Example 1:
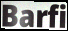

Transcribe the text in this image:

Barfi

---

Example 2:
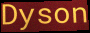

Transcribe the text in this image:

Dyson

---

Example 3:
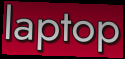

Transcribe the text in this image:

laptop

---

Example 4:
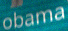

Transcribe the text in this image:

obama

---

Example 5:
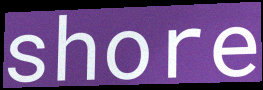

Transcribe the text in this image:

shore